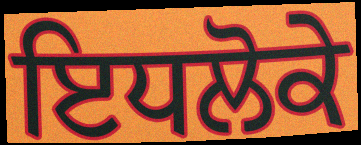
ਇਧਲੋਕੇ